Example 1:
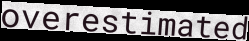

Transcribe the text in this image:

overestimated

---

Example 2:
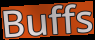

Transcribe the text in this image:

Buffs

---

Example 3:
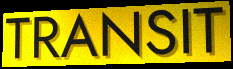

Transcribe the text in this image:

TRANSIT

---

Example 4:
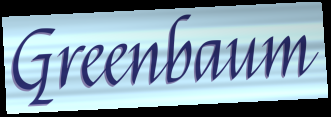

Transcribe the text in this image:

Greenbaum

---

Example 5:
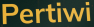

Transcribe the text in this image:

Pertiwi